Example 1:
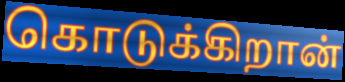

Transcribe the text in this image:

கொடுக்கிறான்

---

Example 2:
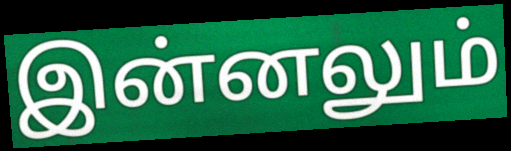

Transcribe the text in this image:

இன்னலும்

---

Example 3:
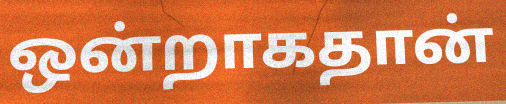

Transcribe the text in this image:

ஒன்றாகதான்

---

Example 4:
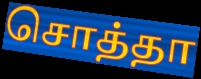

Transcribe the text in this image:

சொத்தா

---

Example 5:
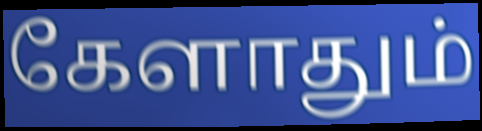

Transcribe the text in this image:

கேளாதும்